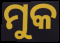
ମୁକ